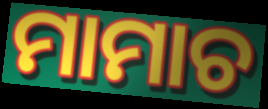
ମାମାଚ